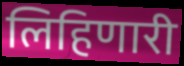
लिहिणारी